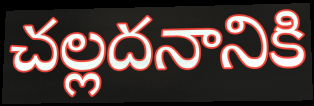
చల్లదనానికి